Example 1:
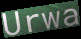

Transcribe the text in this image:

Urwa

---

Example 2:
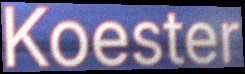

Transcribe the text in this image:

Koester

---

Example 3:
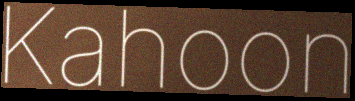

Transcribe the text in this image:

Kahoon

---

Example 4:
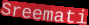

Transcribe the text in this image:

Sreemati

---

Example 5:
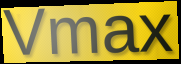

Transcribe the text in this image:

Vmax